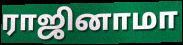
ராஜினாமா